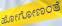
ಹೋಗೋಣಂತೆ